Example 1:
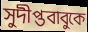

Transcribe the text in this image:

সুদীপ্তবাবুকে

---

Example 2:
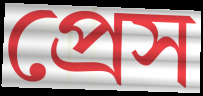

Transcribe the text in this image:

প্রেস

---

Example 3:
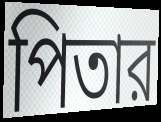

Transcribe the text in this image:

পিতার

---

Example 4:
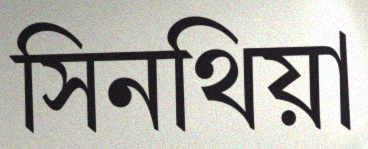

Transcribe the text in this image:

সিনথিয়া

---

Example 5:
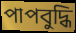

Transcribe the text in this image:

পাপবুদ্ধি